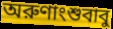
অরুণাংশুবাবু